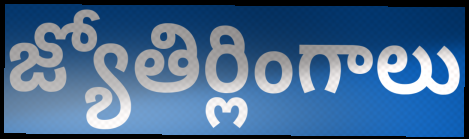
జ్యోతిర్లింగాలు